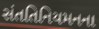
સંતતિનિયમનના